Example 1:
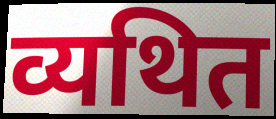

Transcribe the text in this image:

व्यथित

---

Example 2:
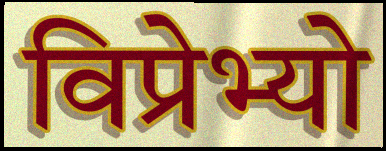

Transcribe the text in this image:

विप्रेभ्यो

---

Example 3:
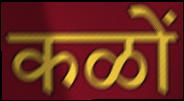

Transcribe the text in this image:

कळों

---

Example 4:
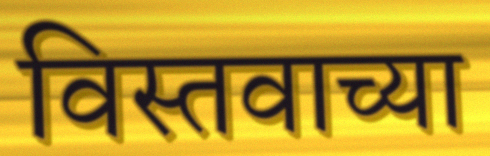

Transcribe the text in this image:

विस्तवाच्या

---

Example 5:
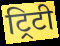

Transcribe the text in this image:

ट्रिटी